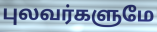
புலவர்களுமே